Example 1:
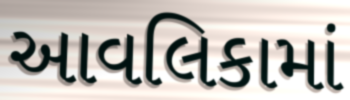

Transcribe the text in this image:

આવલિકામાં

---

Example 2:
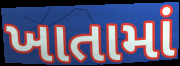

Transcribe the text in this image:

ખાતામાં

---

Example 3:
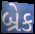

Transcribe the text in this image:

બ્રેક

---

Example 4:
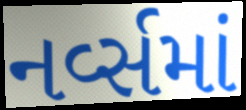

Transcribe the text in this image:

નર્વ્સમાં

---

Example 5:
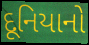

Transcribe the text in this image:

દૂનિયાનો